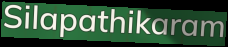
Silapathikaram